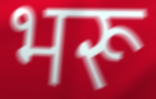
भरू